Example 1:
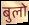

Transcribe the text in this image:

बुलो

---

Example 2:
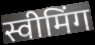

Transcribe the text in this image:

स्‍वीमिंग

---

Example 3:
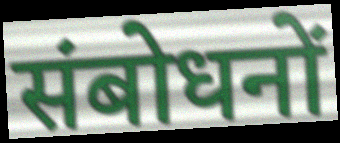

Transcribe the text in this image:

संबोधनों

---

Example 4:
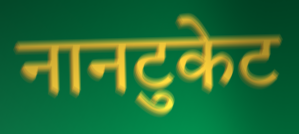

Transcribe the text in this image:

नानटुकेट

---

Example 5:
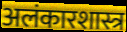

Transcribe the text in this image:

अलंकारशास्त्र